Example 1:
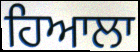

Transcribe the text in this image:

ਹਿਆਲਾ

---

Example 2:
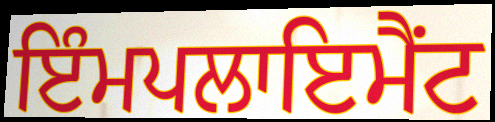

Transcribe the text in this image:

ਇੰਮਪਲਾਇਮੈਂਟ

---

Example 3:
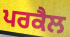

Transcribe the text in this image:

ਪਰਕੈਲ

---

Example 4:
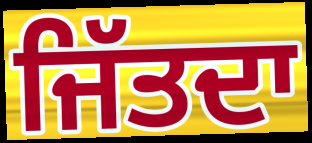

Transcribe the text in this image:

ਜਿੱਤਦਾ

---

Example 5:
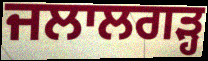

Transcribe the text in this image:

ਜਲਾਲਗੜ੍ਹ